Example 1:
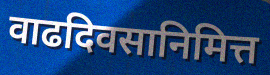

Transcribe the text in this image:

वाढदिवसानिमित्त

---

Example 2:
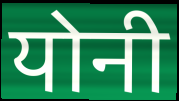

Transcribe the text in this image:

योनी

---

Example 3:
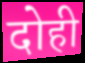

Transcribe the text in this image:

दोही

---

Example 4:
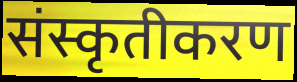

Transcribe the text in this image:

संस्कृतीकरण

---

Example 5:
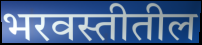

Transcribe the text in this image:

भरवस्तीतील